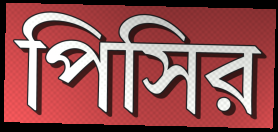
পিসির